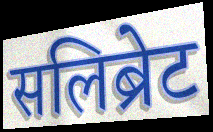
सलिब्रेट